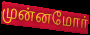
முன்னமோர்